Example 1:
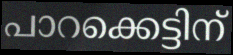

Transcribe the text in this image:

പാറക്കെട്ടിന്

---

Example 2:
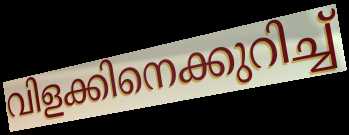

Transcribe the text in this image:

വിളക്കിനെക്കുറിച്ച്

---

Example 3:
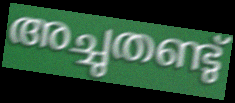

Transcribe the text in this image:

അച്ചുതണ്ടു്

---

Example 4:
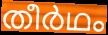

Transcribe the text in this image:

തീർഥം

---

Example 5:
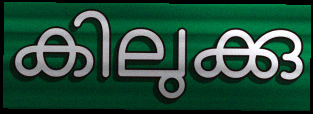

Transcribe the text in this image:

കിലുക്കു